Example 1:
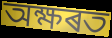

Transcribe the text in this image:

অক্ষৰত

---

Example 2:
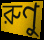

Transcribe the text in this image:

ৰুণু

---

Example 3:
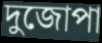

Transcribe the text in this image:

দুজোপা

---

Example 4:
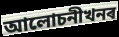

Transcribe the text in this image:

আলোচনীখনৰ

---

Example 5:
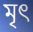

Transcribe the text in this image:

মৃৎ